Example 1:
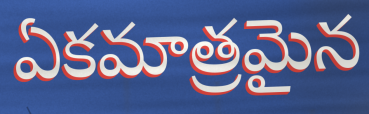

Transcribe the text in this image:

ఏకమాత్రమైన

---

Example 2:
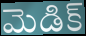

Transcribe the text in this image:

మెడిక్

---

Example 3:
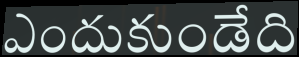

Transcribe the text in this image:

ఎందుకుండేది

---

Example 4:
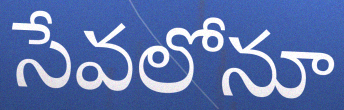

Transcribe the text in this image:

సేవలోనూ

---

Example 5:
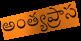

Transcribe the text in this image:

అంత్యప్రాస